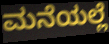
ಮನೆಯಲ್ಲೆ